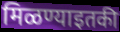
मिळण्याइतकी